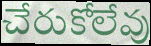
చేరుకోలేవు